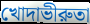
খোদাভীরুতা